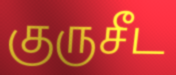
குருசீட